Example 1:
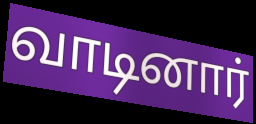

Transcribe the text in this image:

வாடினார்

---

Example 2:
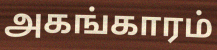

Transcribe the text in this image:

அகங்காரம்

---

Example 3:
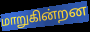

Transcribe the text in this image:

மாறுகின்றன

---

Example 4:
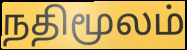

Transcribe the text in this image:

நதிமூலம்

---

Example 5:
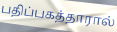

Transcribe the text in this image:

பதிப்பகத்தாரால்